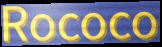
Rococo